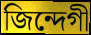
জিন্দেগী